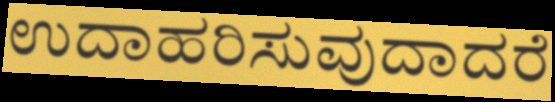
ಉದಾಹರಿಸುವುದಾದರೆ